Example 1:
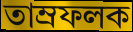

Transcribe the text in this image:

তাম্রফলক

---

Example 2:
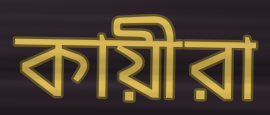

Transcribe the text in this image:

কায়ীরা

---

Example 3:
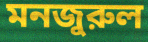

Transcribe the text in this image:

মনজুরুল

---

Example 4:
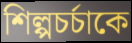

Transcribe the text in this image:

শিল্পচর্চাকে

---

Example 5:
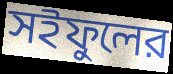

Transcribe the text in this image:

সইফুলের